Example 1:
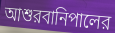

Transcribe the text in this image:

আশুরবানিপালের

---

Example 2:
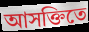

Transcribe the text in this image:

আসক্তিতে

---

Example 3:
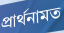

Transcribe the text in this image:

প্রার্থনামত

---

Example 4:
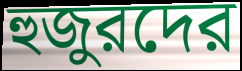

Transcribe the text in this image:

হুজুরদের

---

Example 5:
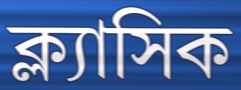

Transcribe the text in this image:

ক্ল্যাসিক